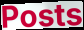
Posts